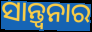
ସାନ୍ତ୍ବନାର